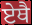
ਏਥੈ